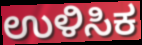
ಉಳಿಸಿಕ